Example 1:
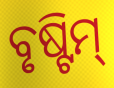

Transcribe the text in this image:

ବୃଷ୍ଟିମ୍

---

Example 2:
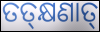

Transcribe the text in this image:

ତତ୍କ୍ଷଣାତ୍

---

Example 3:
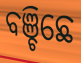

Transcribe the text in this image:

ବଞ୍ଚିଛେ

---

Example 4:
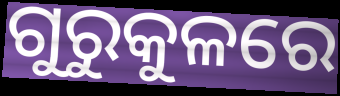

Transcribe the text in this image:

ଗୁରୁକୁଳରେ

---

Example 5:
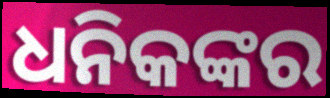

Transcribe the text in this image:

ଧନିକଙ୍କର